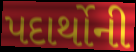
પદાર્થોની